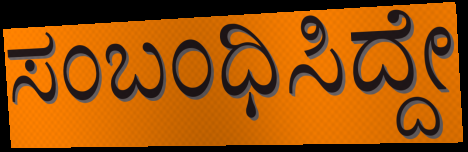
ಸಂಬಂಧಿಸಿದ್ದೇ